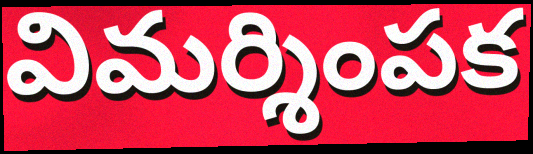
విమర్శింపక